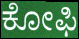
ಕೋಫಿ